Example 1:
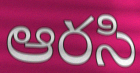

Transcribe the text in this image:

ఆరసి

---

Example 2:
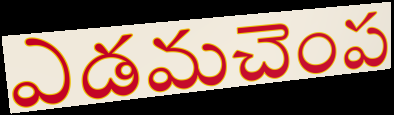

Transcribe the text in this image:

ఎడమచెంప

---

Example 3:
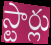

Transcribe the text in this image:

స్టార్లు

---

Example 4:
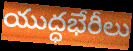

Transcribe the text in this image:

యుద్ధభేరీలు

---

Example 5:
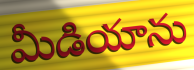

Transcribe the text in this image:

మీడియాను